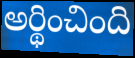
అర్థించింది